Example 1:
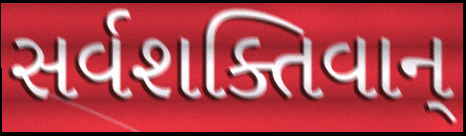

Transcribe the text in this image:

સર્વશક્તિવાન્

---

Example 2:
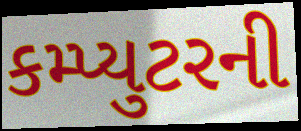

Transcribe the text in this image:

કમ્પ્યુટરની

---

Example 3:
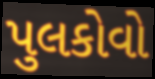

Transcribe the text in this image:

પુલકોવો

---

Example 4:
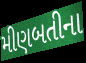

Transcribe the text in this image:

મીણબતીના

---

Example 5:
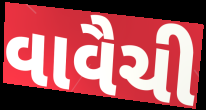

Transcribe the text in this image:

વાવૈચી